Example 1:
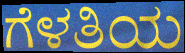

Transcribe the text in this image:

ಗೆಳತಿಯ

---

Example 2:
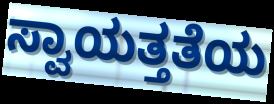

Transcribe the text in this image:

ಸ್ವಾಯತ್ತತೆಯ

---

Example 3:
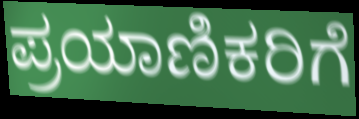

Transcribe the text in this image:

ಪ್ರಯಾಣಿಕರಿಗೆ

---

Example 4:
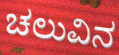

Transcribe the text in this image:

ಚಲುವಿನ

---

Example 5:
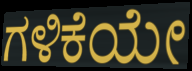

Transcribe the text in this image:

ಗಳಿಕೆಯೇ